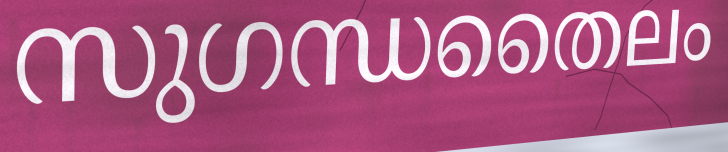
സുഗന്ധതൈലം